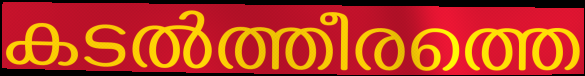
കടൽത്തീരത്തെ